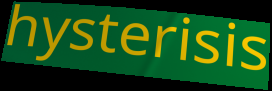
hysterisis